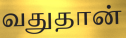
வதுதான்